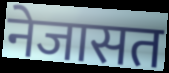
नेजासत